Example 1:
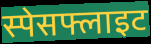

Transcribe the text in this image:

स्पेसफ्लाइट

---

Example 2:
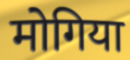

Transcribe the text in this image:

मोगिया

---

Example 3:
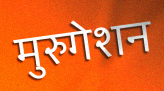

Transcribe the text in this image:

मुरुगेशन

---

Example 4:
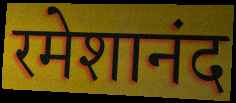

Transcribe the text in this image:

रमेशानंद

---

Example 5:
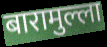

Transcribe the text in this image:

बारामुल्‍ला